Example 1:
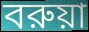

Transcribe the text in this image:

বরুয়া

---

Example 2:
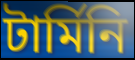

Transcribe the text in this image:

টার্মিনি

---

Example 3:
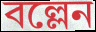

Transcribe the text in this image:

বল্লেন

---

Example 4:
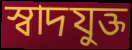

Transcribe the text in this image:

স্বাদযুক্ত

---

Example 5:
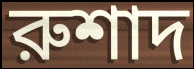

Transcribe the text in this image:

রুশাদ